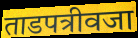
ताडपत्रीवजा